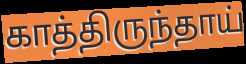
காத்திருந்தாய்